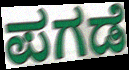
ಪಗಡೆ